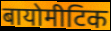
बायोमीटिक